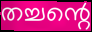
തച്ചന്റെ